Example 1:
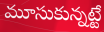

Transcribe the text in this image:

మూసుకున్నట్టే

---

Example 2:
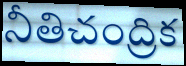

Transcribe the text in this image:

నీతిచంద్రిక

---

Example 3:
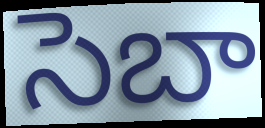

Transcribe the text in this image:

సెబా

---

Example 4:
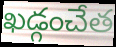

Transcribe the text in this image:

ఖడ్గంచేత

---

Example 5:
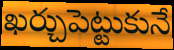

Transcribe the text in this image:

ఖర్చుపెట్టుకునే